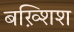
बख़्शिश